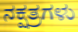
ನಕ್ಷತ್ರಗಳು